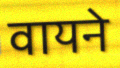
वायने